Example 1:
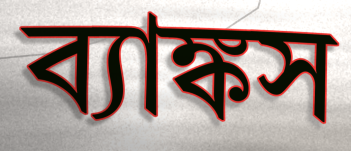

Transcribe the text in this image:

ব্যাঙ্কস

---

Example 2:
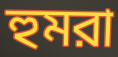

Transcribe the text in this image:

হুমরা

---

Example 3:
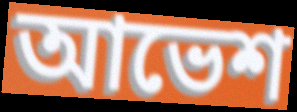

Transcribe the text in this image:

আভেশ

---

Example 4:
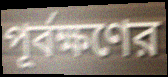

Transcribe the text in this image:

পূর্বক্ষণের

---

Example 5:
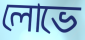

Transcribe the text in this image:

লোভে